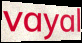
vayal